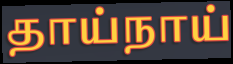
தாய்நாய்